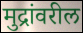
मुद्रांवरील